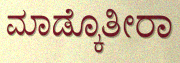
ಮಾಡ್ಕೊತೀರಾ